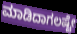
ಮಾಡಿದಾಗಲಷ್ಟೇ